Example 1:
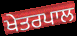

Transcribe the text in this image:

ਖੇਤਰਪਾਲ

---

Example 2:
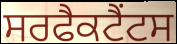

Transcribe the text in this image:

ਸਰਫੈਕਟੈਂਟਸ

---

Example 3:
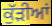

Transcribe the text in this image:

ਕੁੱੜੀਆਂ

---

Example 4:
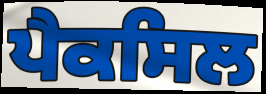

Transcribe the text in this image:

ਪੈਕਸਿਲ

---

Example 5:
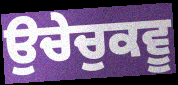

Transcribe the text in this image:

ਉਚੇਚੁਕਵੂ